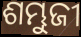
ଶମ୍ଭୁଜୀ